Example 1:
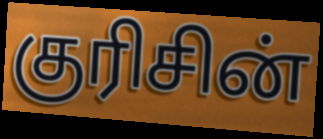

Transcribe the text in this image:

குரிசின்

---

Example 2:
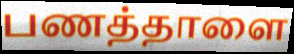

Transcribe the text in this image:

பணத்தாளை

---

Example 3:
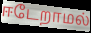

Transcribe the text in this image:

ஈடேறாமல்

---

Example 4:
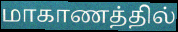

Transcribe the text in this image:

மாகாணத்தில்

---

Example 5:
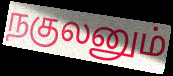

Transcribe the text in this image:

நகுலனும்